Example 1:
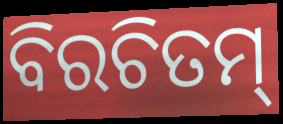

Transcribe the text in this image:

ବିରଚିତମ୍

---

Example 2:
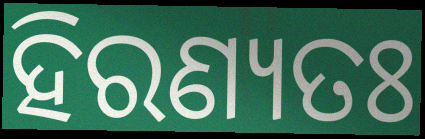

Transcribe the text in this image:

ହିରଣ୍ୟତଃ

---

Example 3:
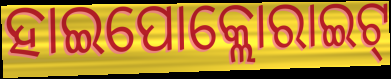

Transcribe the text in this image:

ହାଇପୋକ୍ଲୋରାଇଟ୍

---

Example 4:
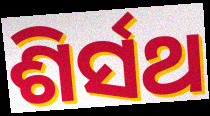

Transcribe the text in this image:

ଶିର୍ସଥ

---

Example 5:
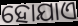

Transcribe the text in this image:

ହୋଯାଏ